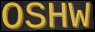
OSHW